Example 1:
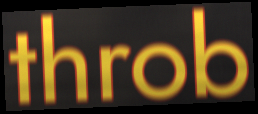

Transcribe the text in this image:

throb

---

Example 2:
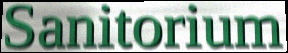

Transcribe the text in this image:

Sanitorium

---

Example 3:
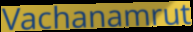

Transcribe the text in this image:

Vachanamrut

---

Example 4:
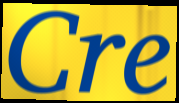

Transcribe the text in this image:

Cre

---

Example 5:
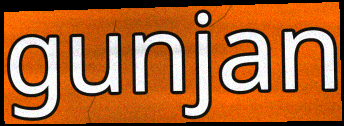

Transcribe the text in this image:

gunjan